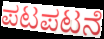
ಪಟಪಟನೆ